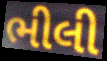
ભીલી